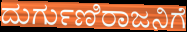
ದುರ್ಗುಣಿರಾಜನಿಗೆ